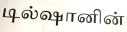
டில்ஷானின்